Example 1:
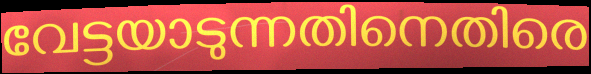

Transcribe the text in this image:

വേട്ടയാടുന്നതിനെതിരെ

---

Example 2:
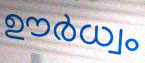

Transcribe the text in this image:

ഊർധ്വം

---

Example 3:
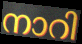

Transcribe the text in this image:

നാറി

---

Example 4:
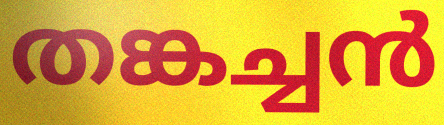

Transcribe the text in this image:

തങ്കച്ചൻ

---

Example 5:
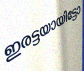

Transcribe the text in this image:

ഇരട്ടയായിട്ടോ